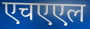
एचएएल